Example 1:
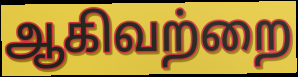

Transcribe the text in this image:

ஆகிவற்றை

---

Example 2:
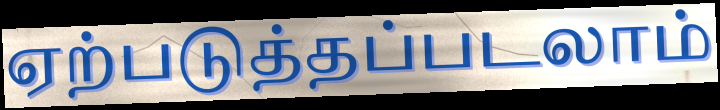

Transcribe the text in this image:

ஏற்படுத்தப்படலாம்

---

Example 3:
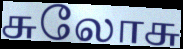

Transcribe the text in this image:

சுலோசு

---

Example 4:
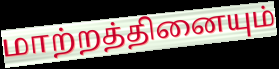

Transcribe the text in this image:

மாற்றத்தினையும்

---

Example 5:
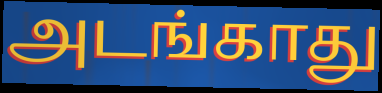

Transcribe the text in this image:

அடங்காது